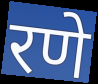
रणे